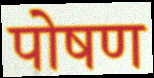
पोषण